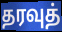
தரவுத்